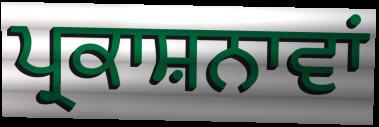
ਪ੍ਰਕਾਸ਼ਨਾਵਾਂ